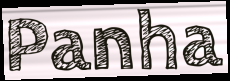
Panha